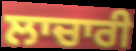
ਲਾਚਾਰੀ